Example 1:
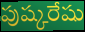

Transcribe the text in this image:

పుష్కరేషు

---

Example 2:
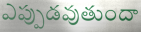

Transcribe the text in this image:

ఎప్పుడవుతుందా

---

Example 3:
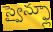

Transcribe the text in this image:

స్వైన్ఫ్లూ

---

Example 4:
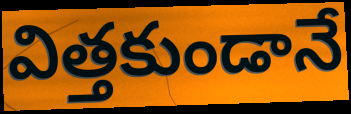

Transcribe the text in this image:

విత్తకుండానే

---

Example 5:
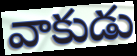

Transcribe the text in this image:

వాకుడు